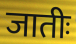
जातीः